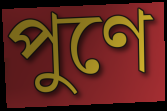
পুণে